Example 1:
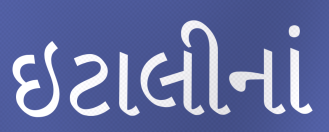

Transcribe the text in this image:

ઇટાલીનાં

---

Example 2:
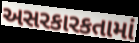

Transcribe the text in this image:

અસરકારકતામાં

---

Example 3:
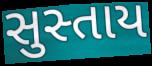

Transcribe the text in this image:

સુસ્તાય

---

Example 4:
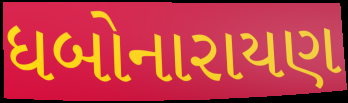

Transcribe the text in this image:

ધબોનારાયણ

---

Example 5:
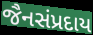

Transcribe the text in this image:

જૈનસંપ્રદાય